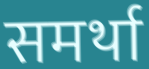
समर्था